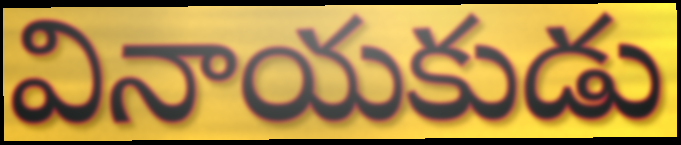
వినాయకుడు